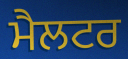
ਮੈਲਟਰ